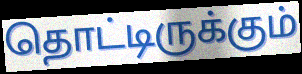
தொட்டிருக்கும்